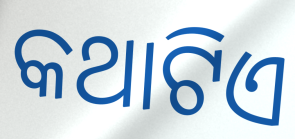
କଥାଟିଏ